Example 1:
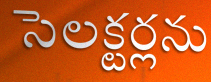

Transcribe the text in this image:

సెలక్టర్లను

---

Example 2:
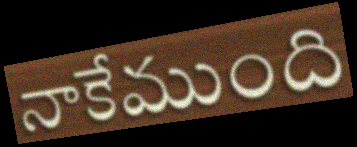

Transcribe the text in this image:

నాకేముంది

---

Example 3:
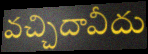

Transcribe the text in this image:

వచ్చిదావీదు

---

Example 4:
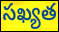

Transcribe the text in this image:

సఖ్యత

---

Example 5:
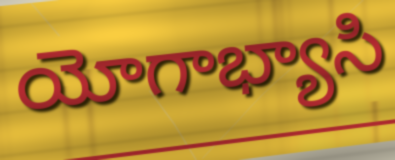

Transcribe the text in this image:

యోగాభ్యాసి